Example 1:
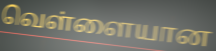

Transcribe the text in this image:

வெள்ளையான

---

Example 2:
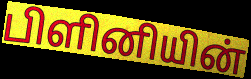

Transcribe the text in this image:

பிளினியின்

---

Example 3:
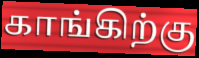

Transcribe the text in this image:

காங்கிற்கு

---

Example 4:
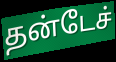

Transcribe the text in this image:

தன்டேச்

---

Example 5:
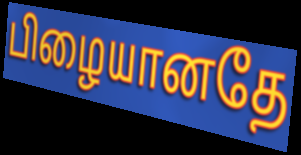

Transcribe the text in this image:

பிழையானதே